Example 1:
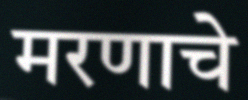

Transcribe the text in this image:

मरणाचे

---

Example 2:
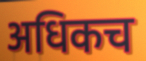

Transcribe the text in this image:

अधिकच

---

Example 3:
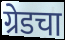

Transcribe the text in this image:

ग्रेडचा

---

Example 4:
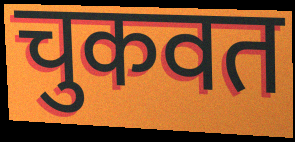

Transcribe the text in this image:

चुकवत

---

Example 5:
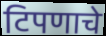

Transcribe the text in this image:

टिपणाचे